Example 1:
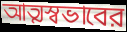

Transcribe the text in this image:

আত্মস্বভাবের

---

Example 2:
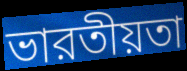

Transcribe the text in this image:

ভারতীয়তা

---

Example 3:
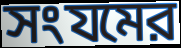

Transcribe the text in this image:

সংযমের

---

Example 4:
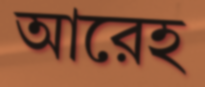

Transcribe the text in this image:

আরেহ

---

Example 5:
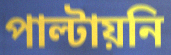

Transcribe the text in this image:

পাল্টায়নি